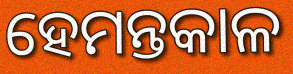
ହେମନ୍ତକାଳ